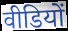
वीडियों